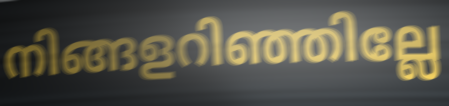
നിങ്ങളറിഞ്ഞില്ലേ